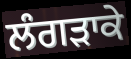
ਲੰਗੜਾਕੇ